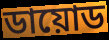
ডায়োড